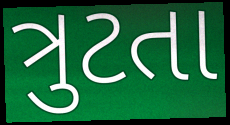
ત્રુટતા